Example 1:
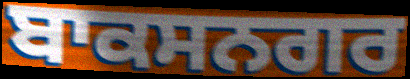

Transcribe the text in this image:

ਬਾਕਸਨਗਰ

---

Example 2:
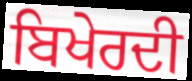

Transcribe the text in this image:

ਬਿਖੇਰਦੀ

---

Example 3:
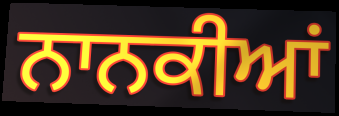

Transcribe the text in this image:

ਨਾਨਕੀਆਂ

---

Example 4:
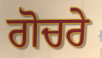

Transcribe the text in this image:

ਗੋਚਰੇ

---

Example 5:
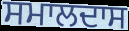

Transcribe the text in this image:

ਸਮਾਲਦਾਸ